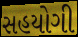
સહયોગી